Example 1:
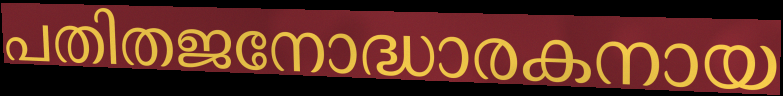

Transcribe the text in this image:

പതിതജനോദ്ധാരകനായ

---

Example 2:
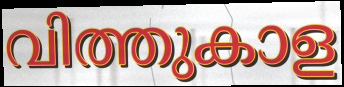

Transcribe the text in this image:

വിത്തുകാള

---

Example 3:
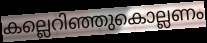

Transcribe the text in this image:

കല്ലെറിഞ്ഞുകൊല്ലണം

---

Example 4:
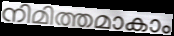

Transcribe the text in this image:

നിമിത്തമാകാം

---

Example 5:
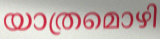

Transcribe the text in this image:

യാത്രമൊഴി